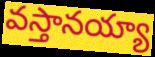
వస్తానయ్యా